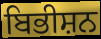
ਬਿਭੀਸ਼ਨ